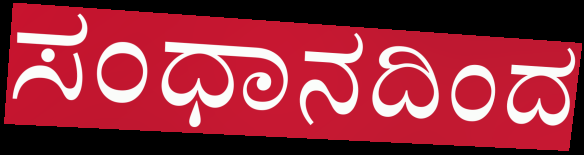
ಸಂಧಾನದಿಂದ